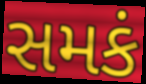
સમકં